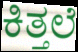
ಕಿತ್ತಲೆ